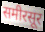
समीरसूर